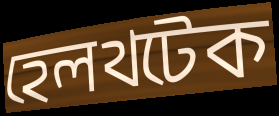
হেলথটেক